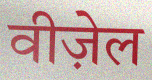
वीज़ेल